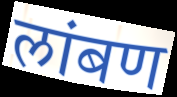
लांबण